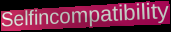
Selfincompatibility